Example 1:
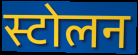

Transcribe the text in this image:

स्टोलन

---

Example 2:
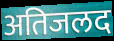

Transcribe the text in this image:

अतिजलद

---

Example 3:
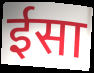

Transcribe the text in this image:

ईसा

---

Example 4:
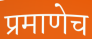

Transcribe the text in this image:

प्रमाणेच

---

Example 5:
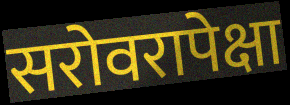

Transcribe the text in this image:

सरोवरापेक्षा